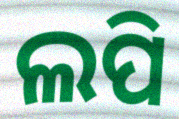
ଲପି